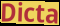
Dicta